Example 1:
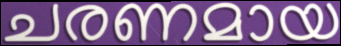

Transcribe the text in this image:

ചരണമായ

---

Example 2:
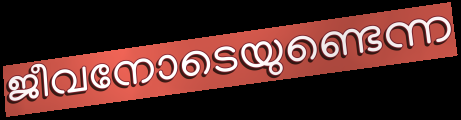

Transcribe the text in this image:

ജീവനോടെയുണ്ടെന്ന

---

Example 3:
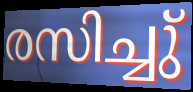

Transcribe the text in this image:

രസിച്ചു്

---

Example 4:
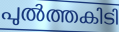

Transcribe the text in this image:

പുൽത്തകിടി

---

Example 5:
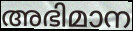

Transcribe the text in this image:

അഭിമാന